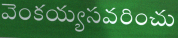
వెంకయ్యసవరించు